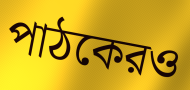
পাঠকেরও